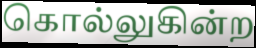
கொல்லுகின்ற